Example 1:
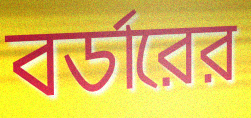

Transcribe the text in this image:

বর্ডারের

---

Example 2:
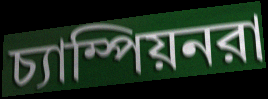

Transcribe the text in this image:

চ্যাম্পিয়নরা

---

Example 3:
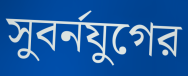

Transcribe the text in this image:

সুবর্নযুগের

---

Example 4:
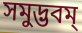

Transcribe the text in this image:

সমুদ্ভবম্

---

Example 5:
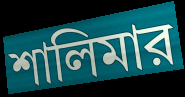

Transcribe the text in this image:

শালিমার